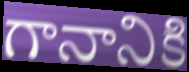
గానానికి